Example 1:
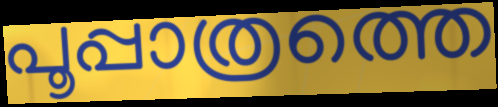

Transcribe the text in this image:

പൂപ്പാത്രത്തെ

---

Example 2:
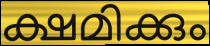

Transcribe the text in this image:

ക്ഷമിക്കും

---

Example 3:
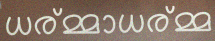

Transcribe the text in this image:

ധര്മ്മാധര്മ്മ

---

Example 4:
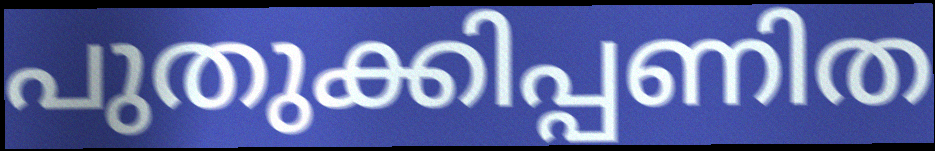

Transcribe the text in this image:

പുതുക്കിപ്പണിത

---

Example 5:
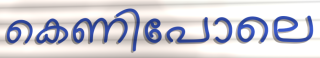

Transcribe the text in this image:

കെണിപോലെ